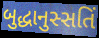
બુદ્ધાનુસ્સતિં